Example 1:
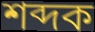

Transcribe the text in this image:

শব্দক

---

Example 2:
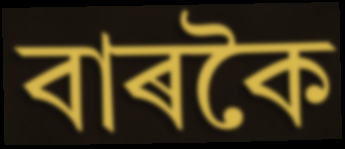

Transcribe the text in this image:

বাৰকৈ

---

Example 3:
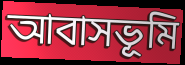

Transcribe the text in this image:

আবাসভূমি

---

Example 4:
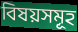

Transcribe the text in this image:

বিষয়সমূহ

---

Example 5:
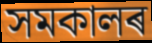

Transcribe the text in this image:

সমকালৰ